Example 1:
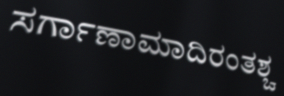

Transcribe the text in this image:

ಸರ್ಗಾಣಾಮಾದಿರಂತಶ್ಚ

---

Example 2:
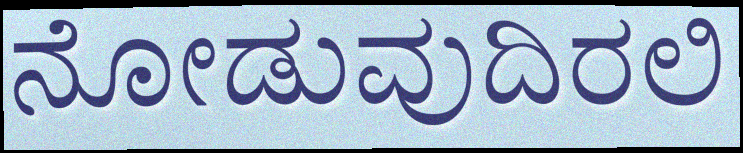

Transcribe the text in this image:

ನೋಡುವುದಿರಲಿ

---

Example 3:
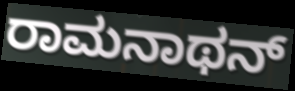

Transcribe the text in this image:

ರಾಮನಾಥನ್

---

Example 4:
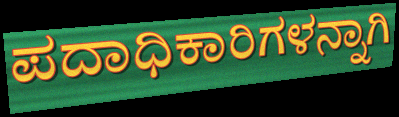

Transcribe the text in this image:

ಪದಾಧಿಕಾರಿಗಳನ್ನಾಗಿ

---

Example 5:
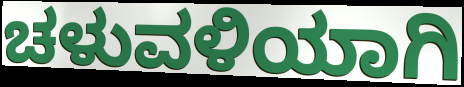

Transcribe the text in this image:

ಚಳುವಳಿಯಾಗಿ